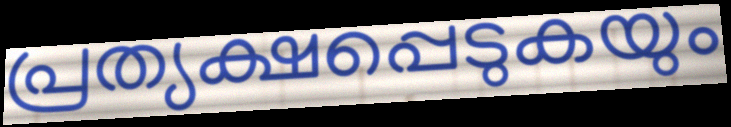
പ്രത്യക്ഷപ്പെടുകയും